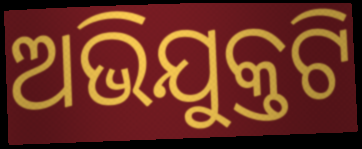
ଅଭିଯୁକ୍ତଟି